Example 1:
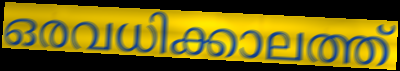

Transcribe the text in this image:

ഒരവധിക്കാലത്ത്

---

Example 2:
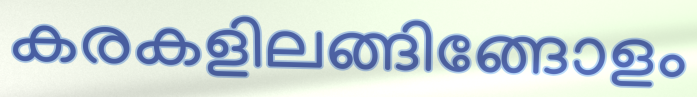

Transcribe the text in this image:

കരകളിലങ്ങിങ്ങോളം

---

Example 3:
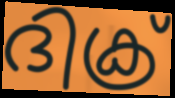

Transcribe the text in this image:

ദിക്ര്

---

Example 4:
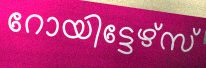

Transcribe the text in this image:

റോയിട്ടേഴ്സ്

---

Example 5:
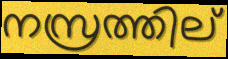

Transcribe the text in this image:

നസ്രത്തില്